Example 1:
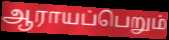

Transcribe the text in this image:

ஆராயப்பெறும்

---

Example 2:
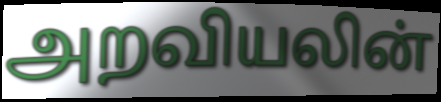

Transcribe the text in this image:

அறவியலின்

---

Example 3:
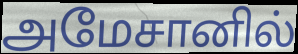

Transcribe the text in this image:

அமேசானில்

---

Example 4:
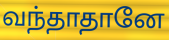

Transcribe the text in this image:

வந்தாதானே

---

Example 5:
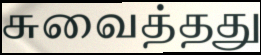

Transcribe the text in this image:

சுவைத்தது